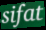
sifat